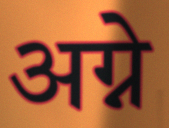
अग्ने